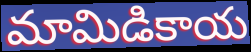
మామిడికాయ